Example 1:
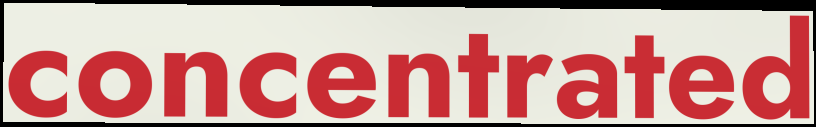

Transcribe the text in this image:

concentrated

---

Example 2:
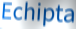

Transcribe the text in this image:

Echipta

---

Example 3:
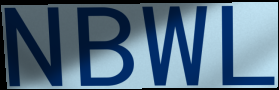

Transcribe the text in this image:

NBWL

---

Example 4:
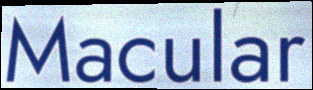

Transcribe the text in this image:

Macular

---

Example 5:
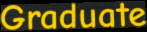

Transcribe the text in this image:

Graduate